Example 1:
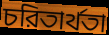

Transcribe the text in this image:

চরিতার্থতা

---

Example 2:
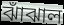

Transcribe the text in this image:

ঝাঁঝাল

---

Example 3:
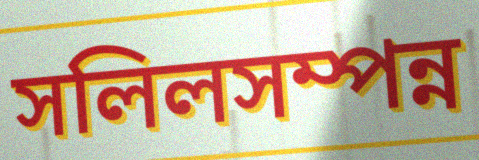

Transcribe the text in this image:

সলিলসম্পন্ন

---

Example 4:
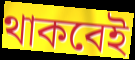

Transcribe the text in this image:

থাকবেই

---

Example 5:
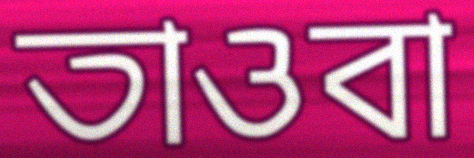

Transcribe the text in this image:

তাওবা